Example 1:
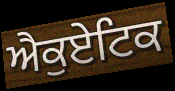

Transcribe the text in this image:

ਐਕੁਏਟਿਕ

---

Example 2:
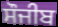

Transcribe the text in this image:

ਸੌਜੀਬ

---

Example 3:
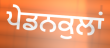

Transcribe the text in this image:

ਪੇਡਨਕੁਲਾਂ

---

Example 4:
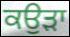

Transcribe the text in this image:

ਕਉੜਾ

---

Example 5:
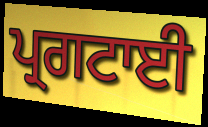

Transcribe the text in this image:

ਪ੍ਰਗਟਾਈ